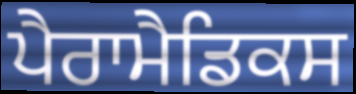
ਪੈਰਾਮੈਡਿਕਸ